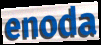
enoda